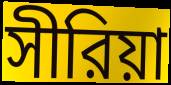
সীরিয়া